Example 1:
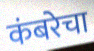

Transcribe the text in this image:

कंबरेचा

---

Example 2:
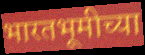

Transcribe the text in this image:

भारतभूमीच्या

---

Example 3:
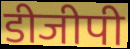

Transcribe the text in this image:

डीजीपी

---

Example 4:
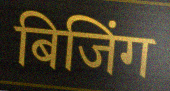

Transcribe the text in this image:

बिजिंग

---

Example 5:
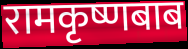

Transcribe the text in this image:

रामकृष्णबाब